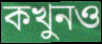
কখুনও